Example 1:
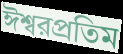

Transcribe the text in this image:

ঈশ্বরপ্রতিম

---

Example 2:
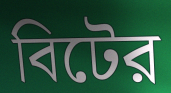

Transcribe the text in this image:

বিটের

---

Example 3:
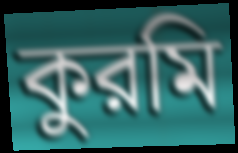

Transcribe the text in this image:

কুরমি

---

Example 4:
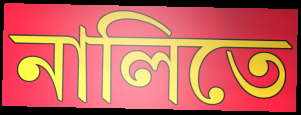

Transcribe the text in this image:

নালিতে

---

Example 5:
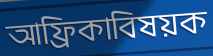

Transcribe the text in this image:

আফ্রিকাবিষয়ক